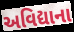
અવિદ્યાના